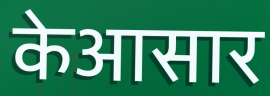
केआसार